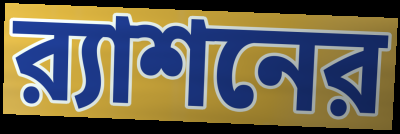
র‍্যাশনের